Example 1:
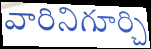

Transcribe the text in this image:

వారినిగూర్చి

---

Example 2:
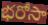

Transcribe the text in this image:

భరోసా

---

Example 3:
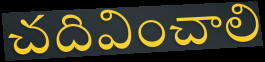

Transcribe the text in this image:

చదివించాలి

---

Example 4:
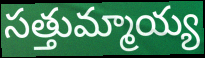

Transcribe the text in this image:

సత్తుమ్మాయ్య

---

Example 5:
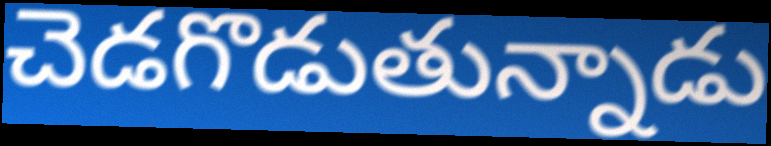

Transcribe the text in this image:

చెడగొడుతున్నాడు